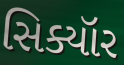
સિક્યૉર